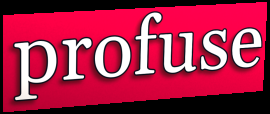
profuse